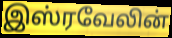
இஸ்ரவேலின்